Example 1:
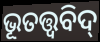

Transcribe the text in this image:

ଭୂତତ୍ତ୍ବବିଦ୍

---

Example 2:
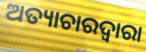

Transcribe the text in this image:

ଅତ୍ୟାଚାରଦ୍ୱାରା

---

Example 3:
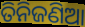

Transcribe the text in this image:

ତିନିଜଣିଆ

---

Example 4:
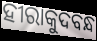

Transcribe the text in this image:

ହୀରାକୁଦବନ୍ଧ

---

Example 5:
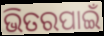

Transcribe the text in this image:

ଭିତରପାଇଁ